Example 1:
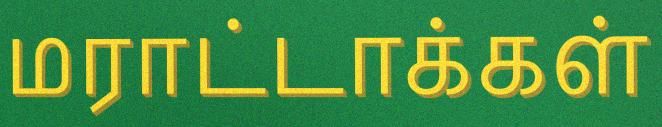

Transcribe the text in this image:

மராட்டாக்கள்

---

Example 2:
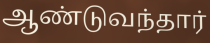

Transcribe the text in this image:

ஆண்டுவந்தார்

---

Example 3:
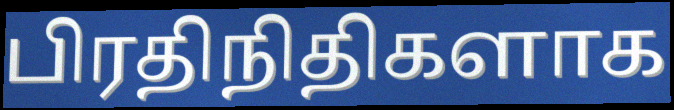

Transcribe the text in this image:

பிரதிநிதிகளாக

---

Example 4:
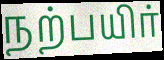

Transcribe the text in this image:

நற்பயிர்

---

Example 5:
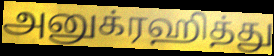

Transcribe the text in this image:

அனுக்ரஹித்து